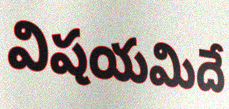
విషయమిదే